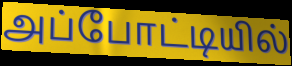
அப்போட்டியில்